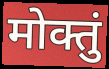
मोक्तुं